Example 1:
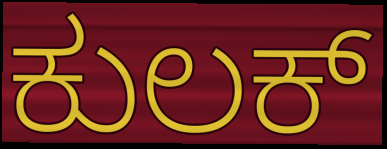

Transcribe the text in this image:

ಕುಲಕ್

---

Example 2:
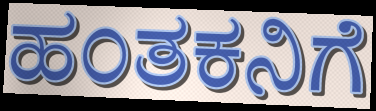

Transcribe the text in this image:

ಹಂತಕನಿಗೆ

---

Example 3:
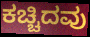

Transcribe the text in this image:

ಕಚ್ಚಿದವು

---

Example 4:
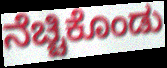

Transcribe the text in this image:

ನೆಚ್ಚಿಕೊಂಡು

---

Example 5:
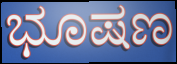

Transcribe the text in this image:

ಭೂಷಣ